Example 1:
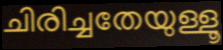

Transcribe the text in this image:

ചിരിച്ചതേയുള്ളൂ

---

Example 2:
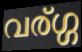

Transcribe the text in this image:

വര്ഗ്ഗ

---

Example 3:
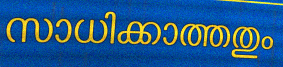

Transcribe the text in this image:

സാധിക്കാത്തതും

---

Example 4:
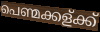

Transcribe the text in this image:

പെണ്മക്കള്ക്ക്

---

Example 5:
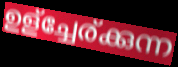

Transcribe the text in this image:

ഉള്ച്ചേര്ക്കുന്ന